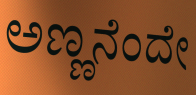
ಅಣ್ಣನೆಂದೇ